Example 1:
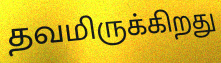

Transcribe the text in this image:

தவமிருக்கிறது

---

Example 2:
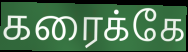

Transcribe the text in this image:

கரைக்கே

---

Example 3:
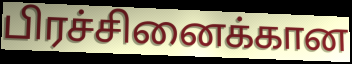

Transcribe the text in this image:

பிரச்சினைக்கான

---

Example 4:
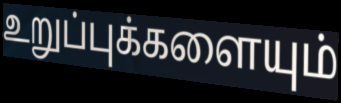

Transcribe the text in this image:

உறுப்புக்களையும்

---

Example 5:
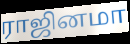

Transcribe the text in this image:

ராஜினமா